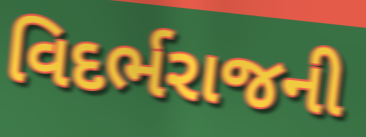
વિદર્ભરાજની